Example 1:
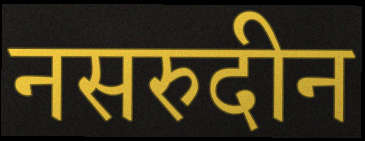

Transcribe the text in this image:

नसरुदीन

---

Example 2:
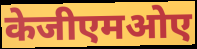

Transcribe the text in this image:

केजीएमओए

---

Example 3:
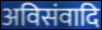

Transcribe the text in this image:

अविसंवादि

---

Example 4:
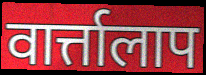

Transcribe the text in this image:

वार्त्तालाप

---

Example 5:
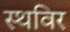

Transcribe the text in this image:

स्थविर